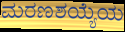
ಮರಣಶಯ್ಯೆಯ